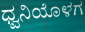
ಧ್ವನಿಯೊಳಗ